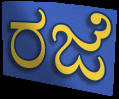
ರಜೆ